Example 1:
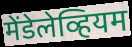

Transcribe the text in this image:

मेंडेलेव्हियम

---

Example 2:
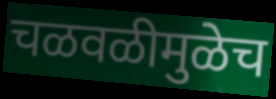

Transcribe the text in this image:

चळवळीमुळेच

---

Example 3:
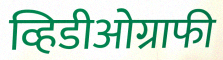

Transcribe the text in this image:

व्हिडीओग्राफी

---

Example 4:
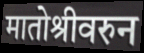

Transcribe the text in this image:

मातोश्रीवरुन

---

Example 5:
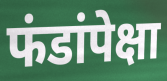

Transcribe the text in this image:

फंडांपेक्षा